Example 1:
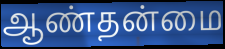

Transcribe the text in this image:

ஆண்தன்மை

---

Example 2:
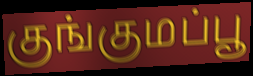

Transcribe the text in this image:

குங்குமப்பூ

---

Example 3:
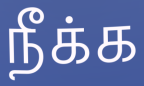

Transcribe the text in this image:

நீக்க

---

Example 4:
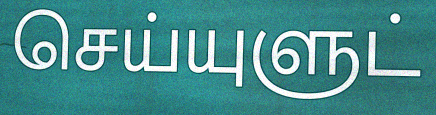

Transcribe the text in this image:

செய்யுளுட்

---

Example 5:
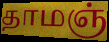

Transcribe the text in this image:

தாமஞ்